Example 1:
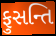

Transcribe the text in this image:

ફુસન્તિ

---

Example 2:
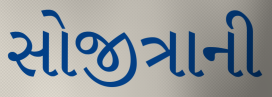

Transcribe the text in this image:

સોજીત્રાની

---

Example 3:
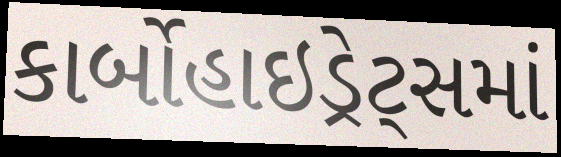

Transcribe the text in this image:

કાર્બોહાઇડ્રેટ્સમાં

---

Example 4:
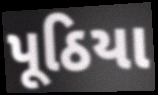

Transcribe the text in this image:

પૂઠિયા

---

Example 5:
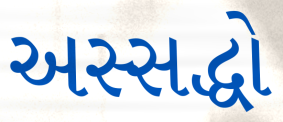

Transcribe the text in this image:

અસ્સદ્ધો